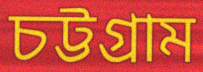
চট্টগ্রাম